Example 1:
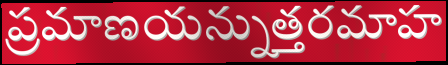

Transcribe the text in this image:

ప్రమాణయన్నుత్తరమాహ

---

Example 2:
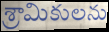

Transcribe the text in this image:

శ్రామికులను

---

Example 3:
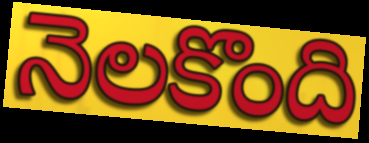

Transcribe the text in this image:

నెలకొంది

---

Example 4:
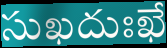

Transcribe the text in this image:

సుఖదుఃఖే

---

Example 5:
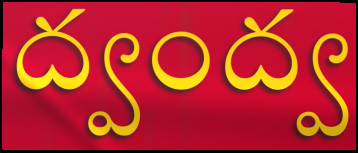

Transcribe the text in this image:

ద్వంద్వ